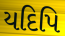
યદિપિ